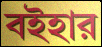
বইহার